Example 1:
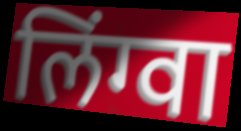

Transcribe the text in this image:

लिंग्वा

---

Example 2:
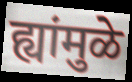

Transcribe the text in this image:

ह्यांमुळे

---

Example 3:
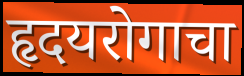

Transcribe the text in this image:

हृदयरोगाचा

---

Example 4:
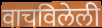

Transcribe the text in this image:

वाचविलेली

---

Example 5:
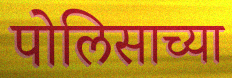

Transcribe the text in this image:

पोलिसाच्या